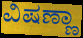
ವಿಷಣ್ಣಾ